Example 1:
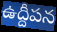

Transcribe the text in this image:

ఉద్దీపన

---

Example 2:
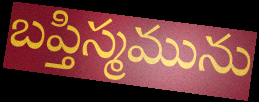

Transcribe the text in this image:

బప్తిస్మమును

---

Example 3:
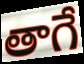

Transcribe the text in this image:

తాగే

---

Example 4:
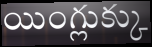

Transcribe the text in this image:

యింగ్లుక్కు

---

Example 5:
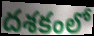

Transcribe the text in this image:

దశకంలో